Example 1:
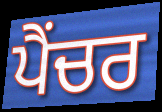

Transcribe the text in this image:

ਪੈਂਚਰ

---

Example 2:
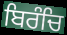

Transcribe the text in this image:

ਬਿਰੰਚਿ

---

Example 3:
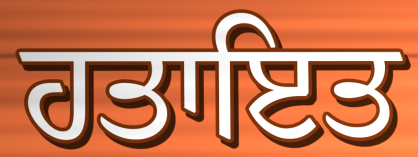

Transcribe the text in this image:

ਹਤਾਇਤ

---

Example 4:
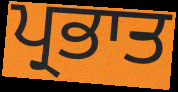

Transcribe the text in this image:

ਪ੍ਰਭਾਤ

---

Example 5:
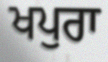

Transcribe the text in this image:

ਖਪੁਰਾ